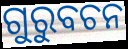
ଗୁରୁବଚନ